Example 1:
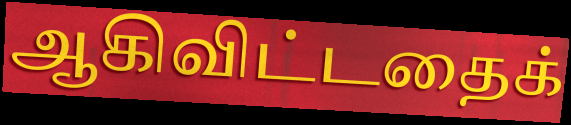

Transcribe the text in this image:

ஆகிவிட்டதைக்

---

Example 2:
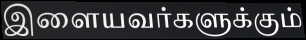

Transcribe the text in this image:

இளையவர்களுக்கும்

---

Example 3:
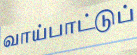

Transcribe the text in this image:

வாய்பாட்டுப்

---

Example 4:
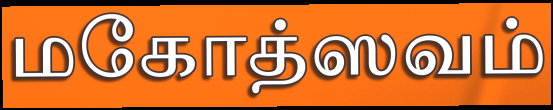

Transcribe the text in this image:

மகோத்ஸவம்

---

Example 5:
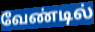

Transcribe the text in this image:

வேண்டில்